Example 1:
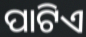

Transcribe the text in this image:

ପାଟିଏ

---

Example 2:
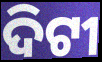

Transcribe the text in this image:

ଦିଟୀ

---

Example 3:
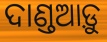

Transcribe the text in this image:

ଦାଣ୍ଡଆଡ଼ୁ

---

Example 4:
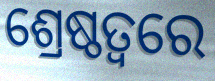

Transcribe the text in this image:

ଶ୍ରେଷ୍ଠତ୍ୱରେ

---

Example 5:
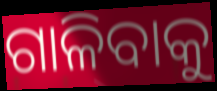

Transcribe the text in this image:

ଗାଳିବାକୁ